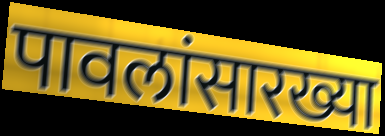
पावलांसारख्या